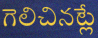
గెలిచినట్లే